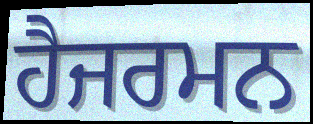
ਹੈਜਰਮਨ